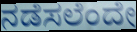
ನಡೆಸಲೆಂದೇ